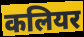
कलियर